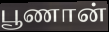
பூணான்